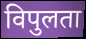
विपुलता